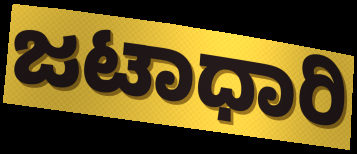
ಜಟಾಧಾರಿ